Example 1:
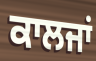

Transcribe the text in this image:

ਕਾਲਜਾਂ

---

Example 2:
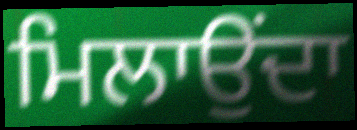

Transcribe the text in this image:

ਮਿਲਾਉਂਦਾ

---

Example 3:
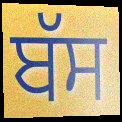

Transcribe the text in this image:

ਬੱਸ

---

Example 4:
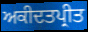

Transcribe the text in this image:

ਅਕੀਦਤਪ੍ਰੀਤ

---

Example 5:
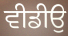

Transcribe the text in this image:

ਵੀਡੀਉ